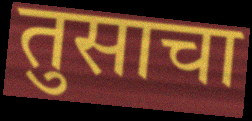
तुसाचा